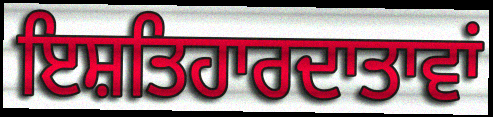
ਇਸ਼ਤਿਹਾਰਦਾਤਾਵਾਂ